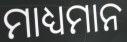
ମାଧ୍ଯମାନ